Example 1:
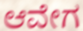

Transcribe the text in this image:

ಆವೇಗ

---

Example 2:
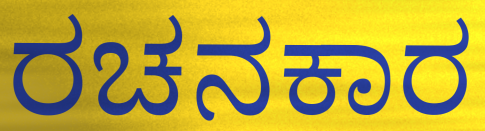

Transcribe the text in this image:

ರಚನಕಾರ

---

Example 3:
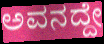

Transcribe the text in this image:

ಅವನದ್ದೇ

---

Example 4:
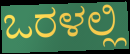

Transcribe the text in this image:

ಒರಳಲ್ಲಿ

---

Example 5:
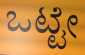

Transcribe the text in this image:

ಒಟ್ಟೇ